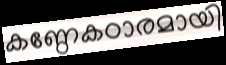
കണ്ഠേകഠാരമായി